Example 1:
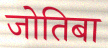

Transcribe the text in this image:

जोतिबा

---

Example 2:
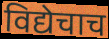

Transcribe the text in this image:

विद्येचाच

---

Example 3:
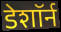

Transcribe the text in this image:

डेशॉर्न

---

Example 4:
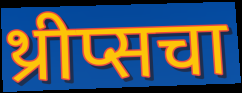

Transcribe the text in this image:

थ्रीप्सचा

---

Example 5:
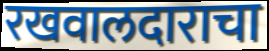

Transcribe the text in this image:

रखवालदाराचा